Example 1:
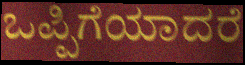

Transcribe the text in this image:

ಒಪ್ಪಿಗೆಯಾದರೆ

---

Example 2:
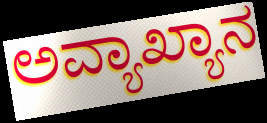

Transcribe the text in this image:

ಅವ್ಯಾಖ್ಯಾನ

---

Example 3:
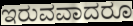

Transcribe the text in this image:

ಇರುವವಾದರೂ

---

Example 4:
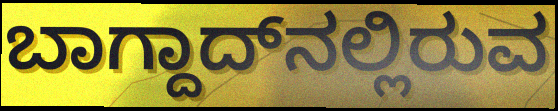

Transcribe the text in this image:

ಬಾಗ್ದಾದ್‌ನಲ್ಲಿರುವ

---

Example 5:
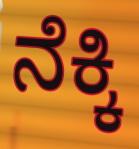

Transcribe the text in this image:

ನೆಕ್ಕಿ